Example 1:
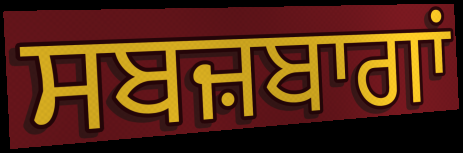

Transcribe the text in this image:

ਸਬਜ਼ਬਾਗਾਂ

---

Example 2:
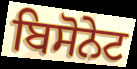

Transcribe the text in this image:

ਬਿਸੋਨੇਟ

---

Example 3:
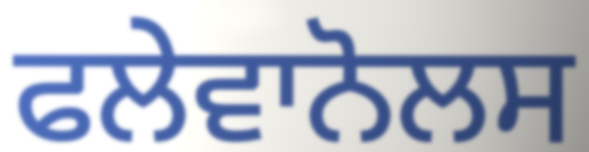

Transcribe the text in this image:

ਫਲੇਵਾਨੋਲਸ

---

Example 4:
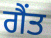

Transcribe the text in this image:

ਗੈਂਤ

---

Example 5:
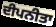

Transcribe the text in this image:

ਦੀਪਨੀਤਾ